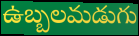
ఉబ్బలమడుగు